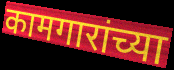
कामगारांच्या